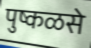
पुष्कळसे